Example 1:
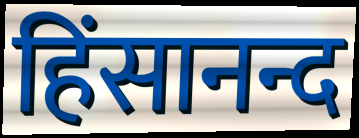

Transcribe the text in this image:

हिंसानन्द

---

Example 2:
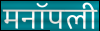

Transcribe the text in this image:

मनॉपली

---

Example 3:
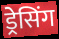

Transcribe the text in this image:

ड्रेसिंग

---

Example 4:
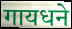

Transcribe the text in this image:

गायधने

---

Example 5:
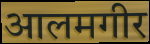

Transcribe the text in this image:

आलमगीर